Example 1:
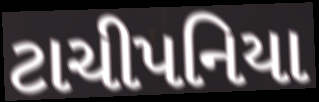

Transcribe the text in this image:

ટાચીપનિયા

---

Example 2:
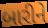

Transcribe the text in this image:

બારીને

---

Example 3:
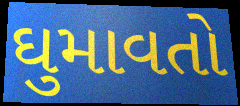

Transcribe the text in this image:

ઘુમાવતો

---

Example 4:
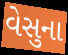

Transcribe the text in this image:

વેસુના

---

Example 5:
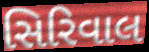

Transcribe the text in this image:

સિરિવાલ